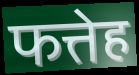
फत्तेह